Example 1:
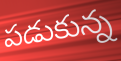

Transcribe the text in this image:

పడుకున్న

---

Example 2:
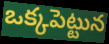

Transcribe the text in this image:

ఒక్కపెట్టున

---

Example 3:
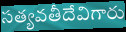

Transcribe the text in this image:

సత్యవతీదేవిగారు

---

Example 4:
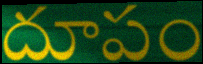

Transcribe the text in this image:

దూపం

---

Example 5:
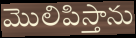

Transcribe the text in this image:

మొలిపిస్తాను